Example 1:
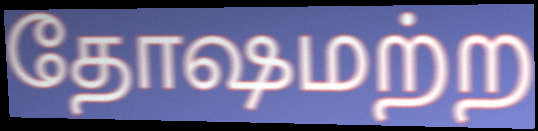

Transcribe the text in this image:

தோஷமற்ற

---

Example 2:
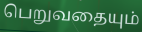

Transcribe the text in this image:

பெறுவதையும்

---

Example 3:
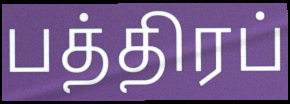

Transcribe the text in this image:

பத்திரப்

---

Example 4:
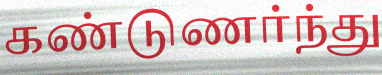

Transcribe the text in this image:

கண்டுணர்ந்து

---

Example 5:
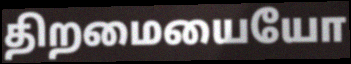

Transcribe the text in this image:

திறமையையோ